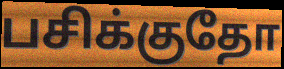
பசிக்குதோ